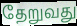
தேறுவது